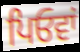
ਪਿਓਵਾਂ